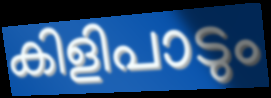
കിളിപാടും